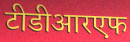
टीडीआरएफ